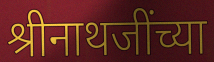
श्रीनाथजींच्या